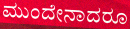
ಮುಂದೇನಾದರೂ